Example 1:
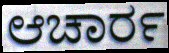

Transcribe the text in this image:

ಆಚಾರ್ರ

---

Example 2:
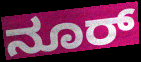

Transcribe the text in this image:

ನೂರ್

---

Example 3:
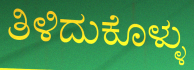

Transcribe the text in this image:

ತಿಳಿದುಕೊಳ್ಳು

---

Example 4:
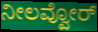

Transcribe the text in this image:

ನೀಲವ್ವೋರ್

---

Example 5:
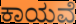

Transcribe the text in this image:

ಕಾಯವೆ